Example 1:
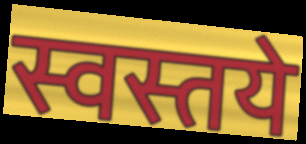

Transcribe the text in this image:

स्वस्तये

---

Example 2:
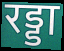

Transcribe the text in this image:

रड्डा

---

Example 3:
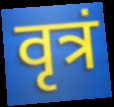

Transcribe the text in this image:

वृत्रं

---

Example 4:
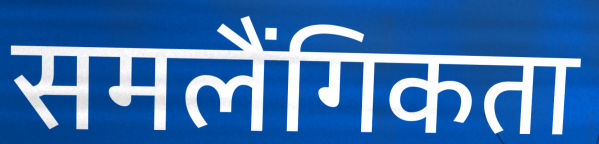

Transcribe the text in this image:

समलैंगिकता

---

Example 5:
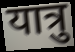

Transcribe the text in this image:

यात्रु